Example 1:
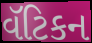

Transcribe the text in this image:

વૅટિકન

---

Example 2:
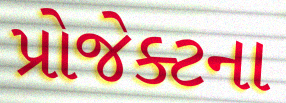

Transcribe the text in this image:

પ્રોજેક્ટના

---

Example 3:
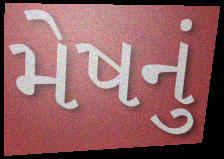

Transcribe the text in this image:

મેષનું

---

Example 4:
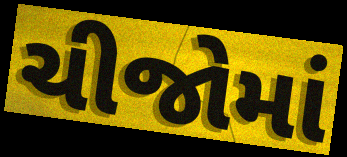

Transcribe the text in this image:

ચીજોમાં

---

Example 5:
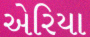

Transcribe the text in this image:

એરિયા